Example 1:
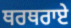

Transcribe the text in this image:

ਥਰਥਰਾਏ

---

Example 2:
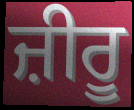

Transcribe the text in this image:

ਜ਼ੀਰੂ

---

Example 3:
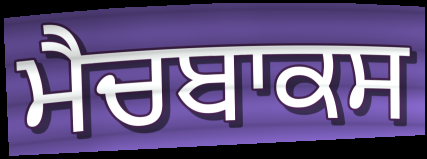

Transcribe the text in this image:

ਮੈਚਬਾਕਸ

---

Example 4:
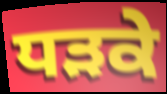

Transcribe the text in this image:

ਧੜਕੇ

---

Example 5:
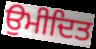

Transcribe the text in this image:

ਉਮੀਦਿਤ